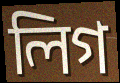
লিগ